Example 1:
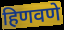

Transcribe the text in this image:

हिणवणे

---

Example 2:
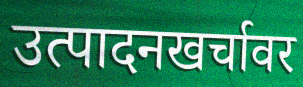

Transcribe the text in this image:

उत्पादनखर्चावर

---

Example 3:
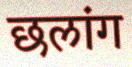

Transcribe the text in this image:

छलांग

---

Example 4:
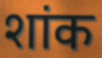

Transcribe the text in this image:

शांक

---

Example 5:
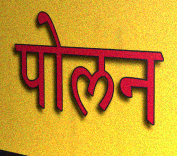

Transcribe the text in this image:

पोलन